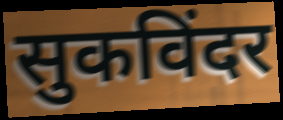
सुकविंदर